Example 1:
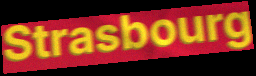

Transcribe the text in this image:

Strasbourg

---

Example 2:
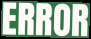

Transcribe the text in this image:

ERROR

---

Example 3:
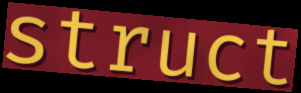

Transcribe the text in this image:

struct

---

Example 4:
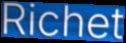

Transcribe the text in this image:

Richet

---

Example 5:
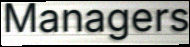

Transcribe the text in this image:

Managers